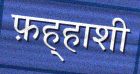
फ़ह्हाशी